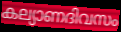
കല്യാണദിവസം